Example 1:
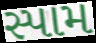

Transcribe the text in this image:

સ્પામ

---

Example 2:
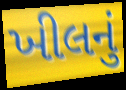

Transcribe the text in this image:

ખીલનું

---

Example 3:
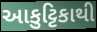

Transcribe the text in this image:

આકુટ્ટિકાથી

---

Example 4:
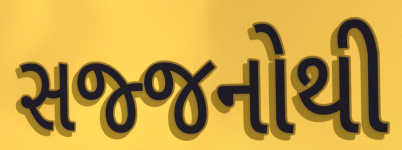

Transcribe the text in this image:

સજ્જનોથી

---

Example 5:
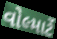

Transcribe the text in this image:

વોલ્માર્ટે